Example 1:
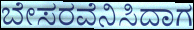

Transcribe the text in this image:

ಬೇಸರವೆನಿಸಿದಾಗ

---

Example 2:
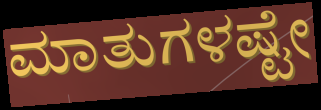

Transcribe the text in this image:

ಮಾತುಗಳಷ್ಟೇ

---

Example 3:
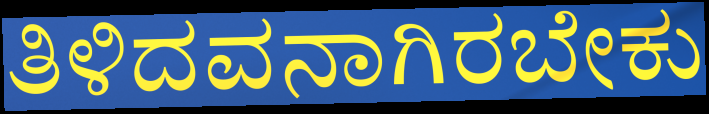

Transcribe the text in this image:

ತಿಳಿದವನಾಗಿರಬೇಕು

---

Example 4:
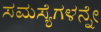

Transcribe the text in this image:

ಸಮಸ್ಯೆಗಳನ್ನೇ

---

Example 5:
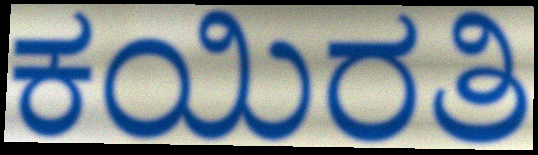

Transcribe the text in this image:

ಕಯಿರತಿ